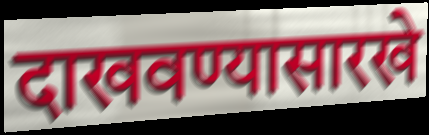
दाखवण्यासारखे